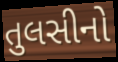
તુલસીનો